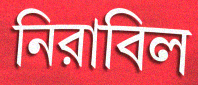
নিরাবিল